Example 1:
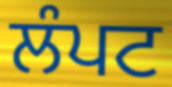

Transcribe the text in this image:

ਲੰਪਟ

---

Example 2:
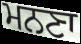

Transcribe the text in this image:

ਮਨਣਾ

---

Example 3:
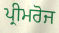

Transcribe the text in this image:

ਪ੍ਰੀਮਰੋਜ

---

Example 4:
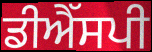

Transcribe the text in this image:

ਡੀਐੱਸਪੀ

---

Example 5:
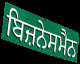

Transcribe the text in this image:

ਬਿਜ਼ਨੇਸਮੈਨ